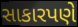
સાકારપણે